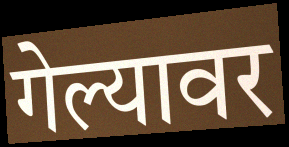
गेल्यावर